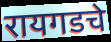
रायगडचे